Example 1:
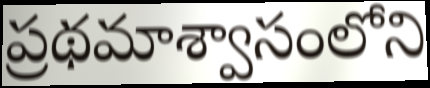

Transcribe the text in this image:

ప్రథమాశ్వాసంలోని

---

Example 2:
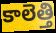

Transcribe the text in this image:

కాలెత్తి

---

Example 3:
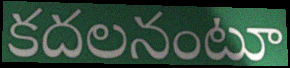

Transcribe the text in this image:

కదలనంటూ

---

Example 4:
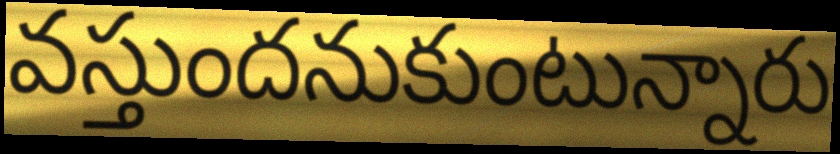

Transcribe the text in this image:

వస్తుందనుకుంటున్నారు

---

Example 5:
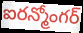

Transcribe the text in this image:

ఐరన్మోంగర్